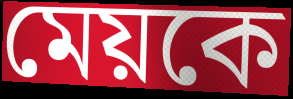
মেয়কে